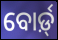
ବୋର୍ଡ଼୍